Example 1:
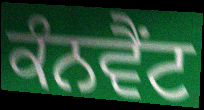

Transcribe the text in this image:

ਕੰਨਵੈਂਟ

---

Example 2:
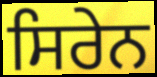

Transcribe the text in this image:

ਸਿਰੇਨ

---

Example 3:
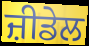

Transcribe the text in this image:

ਜ਼ੀਡੇਲ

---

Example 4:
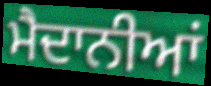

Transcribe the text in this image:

ਮੈਦਾਨੀਆਂ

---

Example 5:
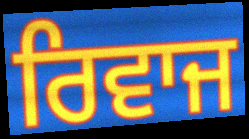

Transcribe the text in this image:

ਰਿਵਾਜ